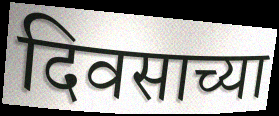
दिवसाच्या